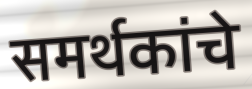
समर्थकांचे